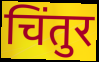
चिंतुर